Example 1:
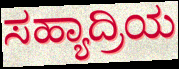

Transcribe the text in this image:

ಸಹ್ಯಾದ್ರಿಯ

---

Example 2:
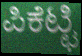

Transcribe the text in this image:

ಪಿಕೆಟ್ಟಿ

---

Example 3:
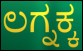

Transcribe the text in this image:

ಲಗ್ನಕ್ಕ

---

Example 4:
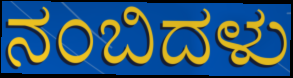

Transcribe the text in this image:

ನಂಬಿದಳು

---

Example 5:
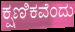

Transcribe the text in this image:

ಕ್ಷಣಿಕವೆಂದು